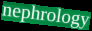
nephrology